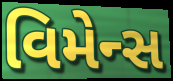
વિમેન્સ